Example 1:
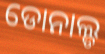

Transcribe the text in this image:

ଡୋନାଲ୍ଡ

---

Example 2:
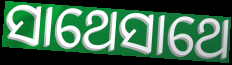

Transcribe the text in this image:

ସାଥେସାଥେ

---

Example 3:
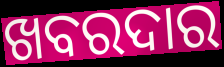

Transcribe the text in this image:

ଖବରଦାର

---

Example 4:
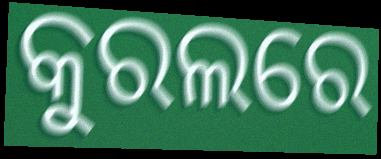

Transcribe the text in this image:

କୁରଲରେ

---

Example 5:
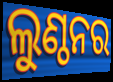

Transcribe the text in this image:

ଲୁଣ୍ଠନର